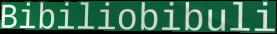
Bibiliobibuli